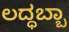
ಲದ್ಧಬ್ಬಾ